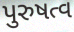
પુરુષત્વ